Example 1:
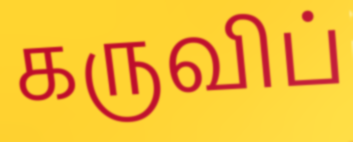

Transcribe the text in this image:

கருவிப்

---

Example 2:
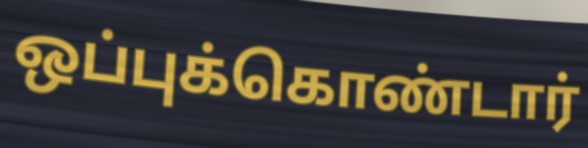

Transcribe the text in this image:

ஒப்புக்கொண்டார்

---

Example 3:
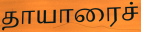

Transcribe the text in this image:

தாயாரைச்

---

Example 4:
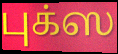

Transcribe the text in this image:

புக்ஸ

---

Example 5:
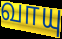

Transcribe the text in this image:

வாயு